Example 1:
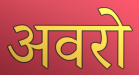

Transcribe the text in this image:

अवरो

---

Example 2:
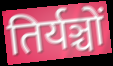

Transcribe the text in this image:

तिर्यञ्चों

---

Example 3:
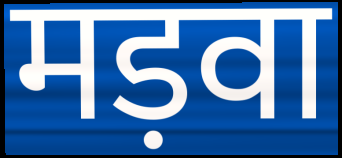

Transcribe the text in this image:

मड़वा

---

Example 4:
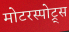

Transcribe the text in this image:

मोटरस्पोट्र्स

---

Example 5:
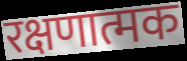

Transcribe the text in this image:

रक्षणात्मक